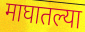
माघातल्या